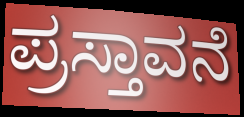
ಪ್ರಸ್ತಾವನೆ